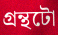
গ্ৰন্থটো